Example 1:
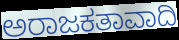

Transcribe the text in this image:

ಅರಾಜಕತಾವಾದಿ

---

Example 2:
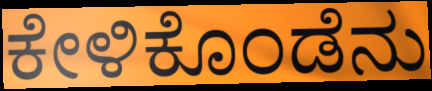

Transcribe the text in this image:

ಕೇಳಿಕೊಂಡೆನು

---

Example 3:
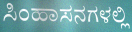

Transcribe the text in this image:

ಸಿಂಹಾಸನಗಳಲ್ಲಿ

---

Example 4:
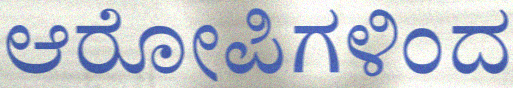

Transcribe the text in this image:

ಆರೋಪಿಗಳಿಂದ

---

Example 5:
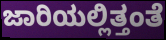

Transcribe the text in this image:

ಜಾರಿಯಲ್ಲಿತ್ತಂತೆ